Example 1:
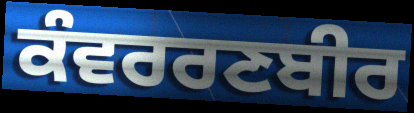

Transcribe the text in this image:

ਕੰਵਰਰਣਬੀਰ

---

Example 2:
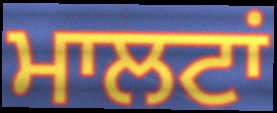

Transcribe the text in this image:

ਮਾਲਟਾਂ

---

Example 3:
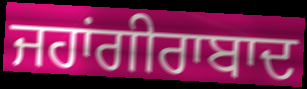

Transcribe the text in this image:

ਜਹਾਂਗੀਰਾਬਾਦ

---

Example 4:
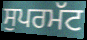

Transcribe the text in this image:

ਸੁਪਰਮੱਟ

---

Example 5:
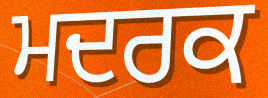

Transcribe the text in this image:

ਮਦਰਕ